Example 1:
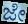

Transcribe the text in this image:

ಜೇ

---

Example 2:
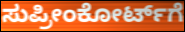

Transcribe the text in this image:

ಸುಪ್ರೀಂಕೋರ್ಟ್‌ಗೆ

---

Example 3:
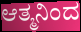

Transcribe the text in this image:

ಆತ್ಮನಿಂದ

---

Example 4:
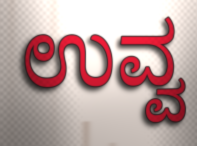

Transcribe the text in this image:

ಉವ್ವ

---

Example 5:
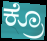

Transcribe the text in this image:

ಕ್ರೊ